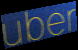
uber